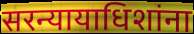
सरन्यायाधिशांना